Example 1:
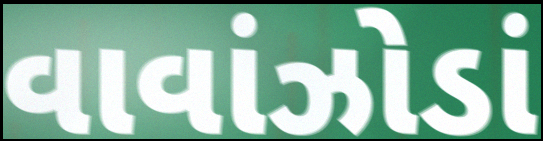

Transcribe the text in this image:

વાવાંઝોડાં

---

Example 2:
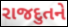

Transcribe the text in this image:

રાજદુતને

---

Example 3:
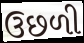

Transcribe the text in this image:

ઉછળી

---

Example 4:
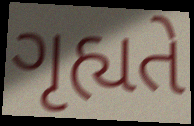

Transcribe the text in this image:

ગૃહ્યતે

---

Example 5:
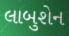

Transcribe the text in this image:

લાબુશેન